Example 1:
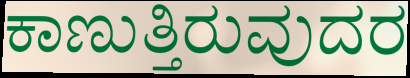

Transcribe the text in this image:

ಕಾಣುತ್ತಿರುವುದರ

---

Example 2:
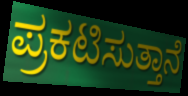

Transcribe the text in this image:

ಪ್ರಕಟಿಸುತ್ತಾನೆ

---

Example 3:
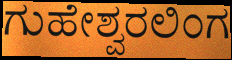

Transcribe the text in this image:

ಗುಹೇಶ್ವರಲಿಂಗ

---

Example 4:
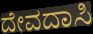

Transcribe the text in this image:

ದೇವದಾಸಿ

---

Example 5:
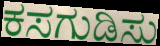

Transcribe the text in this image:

ಕಸಗುಡಿಸು